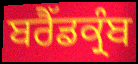
ਬਰੈੱਡਕ੍ਰੰਬ